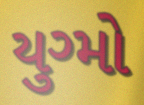
યુગ્મો